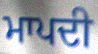
ਮਾਪਦੀ